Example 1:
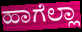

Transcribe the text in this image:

ಹಾಗೆಲ್ಲಾ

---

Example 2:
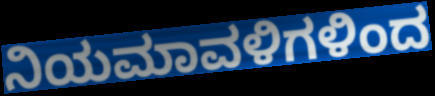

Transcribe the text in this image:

ನಿಯಮಾವಳಿಗಳಿಂದ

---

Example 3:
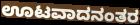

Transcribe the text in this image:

ಊಟವಾದನಂತರ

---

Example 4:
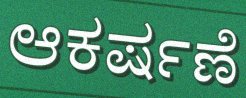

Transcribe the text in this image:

ಆಕರ್ಷಣೆ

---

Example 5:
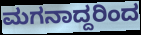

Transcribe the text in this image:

ಮಗನಾದ್ದರಿಂದ